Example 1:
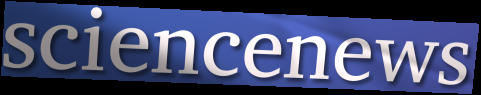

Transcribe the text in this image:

sciencenews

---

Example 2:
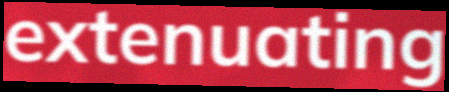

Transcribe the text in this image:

extenuating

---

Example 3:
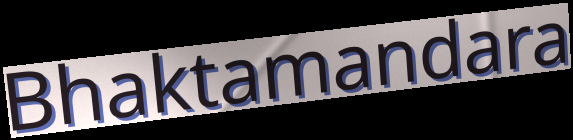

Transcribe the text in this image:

Bhaktamandara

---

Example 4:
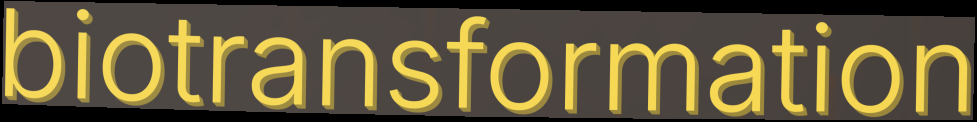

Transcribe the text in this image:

biotransformation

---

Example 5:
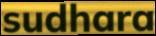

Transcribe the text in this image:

sudhara